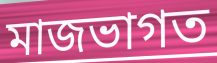
মাজভাগত